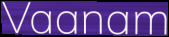
Vaanam